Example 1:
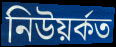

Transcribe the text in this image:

নিউয়ৰ্কত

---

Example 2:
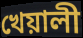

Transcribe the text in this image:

খেয়ালী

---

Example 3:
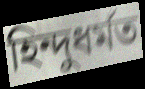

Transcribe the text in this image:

হিন্দুধৰ্মত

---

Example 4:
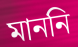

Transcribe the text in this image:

মাননি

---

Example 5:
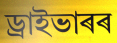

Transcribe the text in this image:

ড্ৰাইভাৰৰ